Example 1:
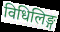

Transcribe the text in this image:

विधिलिङ्ग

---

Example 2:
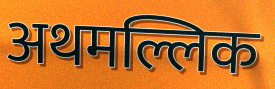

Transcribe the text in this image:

अथमल्लिक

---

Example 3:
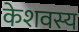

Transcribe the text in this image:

केशवस्य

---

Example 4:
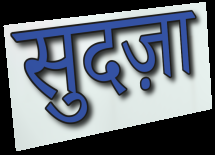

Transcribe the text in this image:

सुदज़ा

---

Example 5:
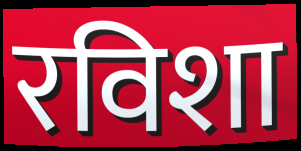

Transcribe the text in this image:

रविशा